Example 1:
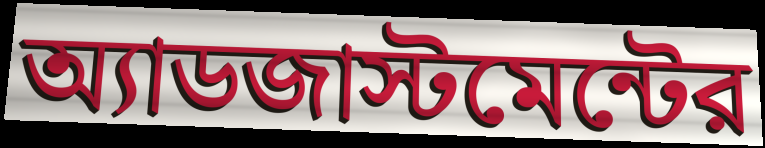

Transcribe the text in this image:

অ্যাডজাস্টমেন্টের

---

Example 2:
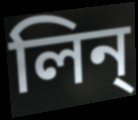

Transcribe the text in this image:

লিন্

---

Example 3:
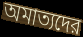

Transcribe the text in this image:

অমাত্যদের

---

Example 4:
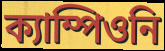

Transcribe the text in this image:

ক্যাম্পিওনি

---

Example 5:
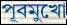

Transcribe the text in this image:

পূবমুখো